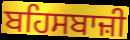
ਬਹਿਸਬਾਜ਼ੀ